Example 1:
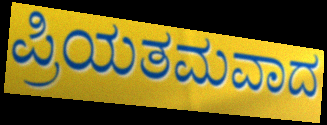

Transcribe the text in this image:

ಪ್ರಿಯತಮವಾದ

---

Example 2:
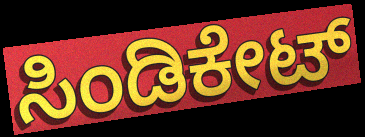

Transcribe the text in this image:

ಸಿಂಡಿಕೇಟ್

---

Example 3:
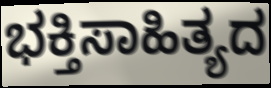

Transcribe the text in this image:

ಭಕ್ತಿಸಾಹಿತ್ಯದ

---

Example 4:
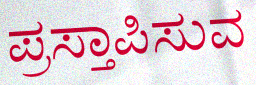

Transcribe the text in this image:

ಪ್ರಸ್ತಾಪಿಸುವ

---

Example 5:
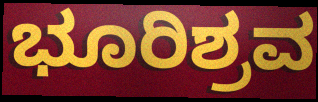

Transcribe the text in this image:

ಭೂರಿಶ್ರವ